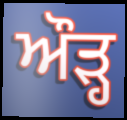
ਔੜ੍ਹ